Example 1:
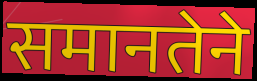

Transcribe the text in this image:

समानतेने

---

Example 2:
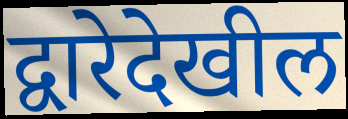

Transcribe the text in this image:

द्वारेदेखील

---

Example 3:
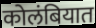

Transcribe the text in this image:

कोलंबियात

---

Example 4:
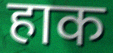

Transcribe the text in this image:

हाक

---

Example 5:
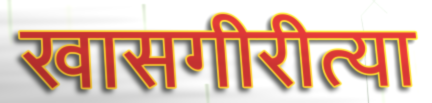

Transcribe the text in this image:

खासगीरीत्या